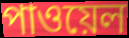
পাওয়েল